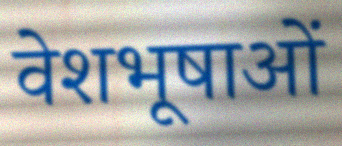
वेशभूषाओं